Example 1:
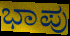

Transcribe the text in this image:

ಭಾಪು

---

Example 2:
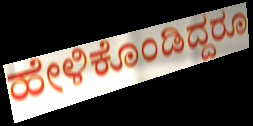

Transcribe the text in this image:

ಹೇಳಿಕೊಂಡಿದ್ದರೂ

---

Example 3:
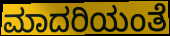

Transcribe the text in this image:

ಮಾದರಿಯಂತೆ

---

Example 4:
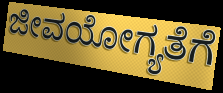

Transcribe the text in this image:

ಜೀವಯೋಗ್ಯತೆಗೆ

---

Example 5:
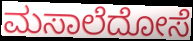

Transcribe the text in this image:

ಮಸಾಲೆದೋಸೆ